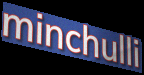
minchulli